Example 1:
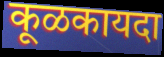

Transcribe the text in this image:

कूळकायदा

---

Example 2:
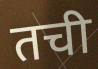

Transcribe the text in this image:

तची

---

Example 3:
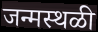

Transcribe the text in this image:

जन्मस्थळी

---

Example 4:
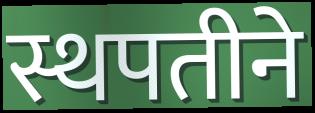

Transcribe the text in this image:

स्थपतीने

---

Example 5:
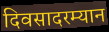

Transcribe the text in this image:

दिवसादरम्यान